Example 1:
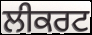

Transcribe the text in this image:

ਲੀਕਰਟ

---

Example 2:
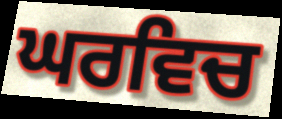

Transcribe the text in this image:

ਘਰਵਿਚ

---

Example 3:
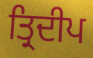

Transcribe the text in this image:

ਤ੍ਰਿਦੀਪ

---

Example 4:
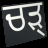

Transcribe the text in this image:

ਚੜ੍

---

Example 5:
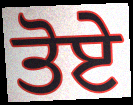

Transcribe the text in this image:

ਤੋਏ